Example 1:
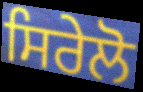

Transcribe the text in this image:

ਸਿਰੇਲੋ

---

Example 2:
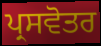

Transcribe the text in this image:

ਪ੍ਰਸਵੋਤਰ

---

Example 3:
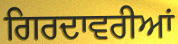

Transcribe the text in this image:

ਗਿਰਦਾਵਰੀਆਂ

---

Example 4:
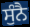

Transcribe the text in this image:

ਸੁੰਨੈ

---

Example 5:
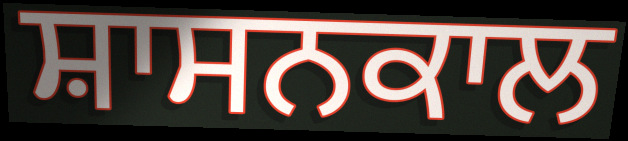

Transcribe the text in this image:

ਸ਼ਾਸਨਕਾਲ